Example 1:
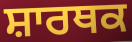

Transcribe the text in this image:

ਸ਼ਾਰਥਕ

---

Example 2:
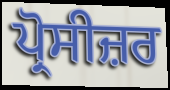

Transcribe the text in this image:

ਪ੍ਰੋਸੀਜ਼ਰ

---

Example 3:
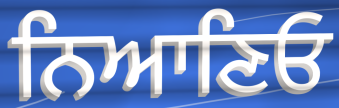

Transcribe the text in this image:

ਨਿਆਣਿਓ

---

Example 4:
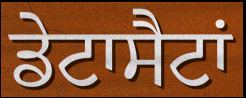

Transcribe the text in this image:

ਡੇਟਾਸੈਟਾਂ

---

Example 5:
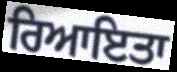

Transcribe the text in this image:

ਰਿਆਇਤਾ